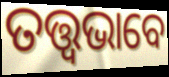
ତତ୍ତ୍ଵଭାବେ